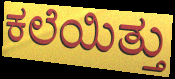
ಕಲೆಯಿತ್ತು